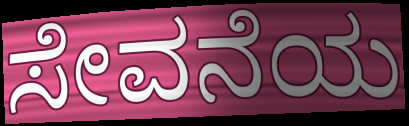
ಸೇವನೆಯ